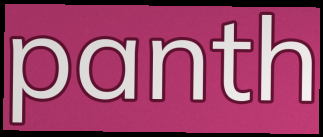
panth